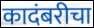
कादंबरीचा